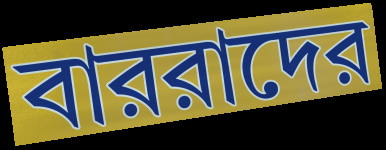
বাররাদের